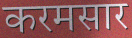
करमसार